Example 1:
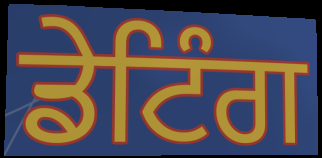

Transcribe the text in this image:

ਡੇਟਿੰਗ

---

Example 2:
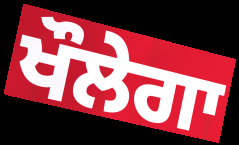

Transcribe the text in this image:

ਖੌਲੇਗਾ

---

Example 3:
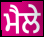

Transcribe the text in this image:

ਮੈਲੇ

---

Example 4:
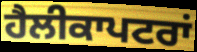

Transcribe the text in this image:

ਹੈਲੀਕਾਪਟਰਾਂ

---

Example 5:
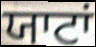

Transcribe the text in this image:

ਯਾਟਾਂ